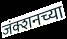
जंक्शनच्या